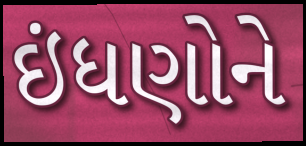
ઇંધણોને